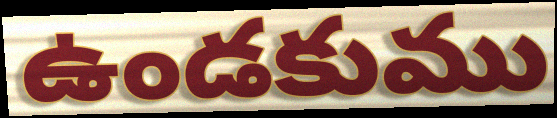
ఉండకుము